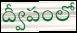
ద్వీపంలో